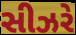
સીઝરે